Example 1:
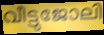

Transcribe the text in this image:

വീട്ടുജോലി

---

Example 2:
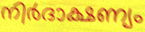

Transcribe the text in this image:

നിർദാക്ഷണ്യം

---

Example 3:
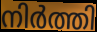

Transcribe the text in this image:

നിർത്തി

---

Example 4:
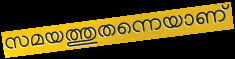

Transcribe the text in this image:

സമയത്തുതന്നെയാണ്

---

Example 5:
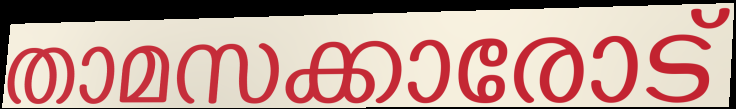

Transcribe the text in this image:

താമസക്കാരോട്